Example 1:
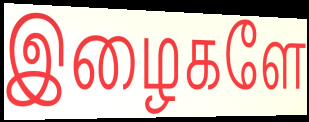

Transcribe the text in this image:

இழைகளே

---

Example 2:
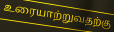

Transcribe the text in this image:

உரையாற்றுவதற்கு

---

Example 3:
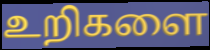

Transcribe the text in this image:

உறிகளை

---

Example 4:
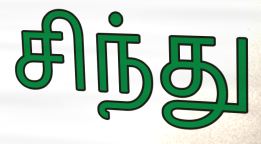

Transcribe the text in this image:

சிந்து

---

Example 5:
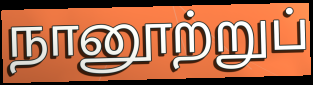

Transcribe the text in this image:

நானூற்றுப்